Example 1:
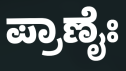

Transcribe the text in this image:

ಪ್ರಾಣೈಃ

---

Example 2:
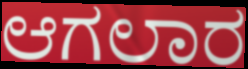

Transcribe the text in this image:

ಆಗಲಾರ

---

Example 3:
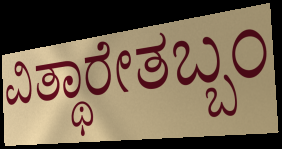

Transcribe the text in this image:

ವಿತ್ಥಾರೇತಬ್ಬಂ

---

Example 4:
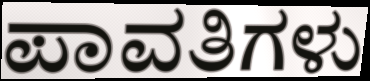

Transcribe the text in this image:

ಪಾವತಿಗಳು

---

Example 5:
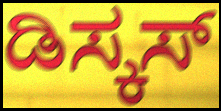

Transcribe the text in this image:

ಡಿಸ್ಕಸ್